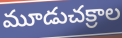
మూడుచక్రాల